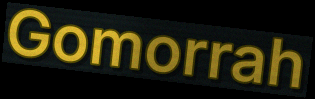
Gomorrah